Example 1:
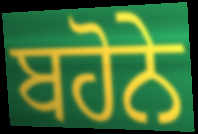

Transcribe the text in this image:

ਬਹੋਨੇ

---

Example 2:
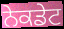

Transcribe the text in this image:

ਨੇਕਡੇਟ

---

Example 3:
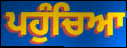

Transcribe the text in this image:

ਪਹੁੰਚਿਆ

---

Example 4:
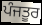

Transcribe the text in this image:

ਪੰਜਤੂਰ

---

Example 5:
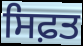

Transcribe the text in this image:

ਸਿਫ਼ਤ